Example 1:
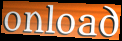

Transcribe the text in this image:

onload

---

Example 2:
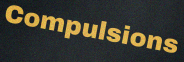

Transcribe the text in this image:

Compulsions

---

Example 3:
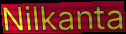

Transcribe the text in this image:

Nilkanta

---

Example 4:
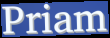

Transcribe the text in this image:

Priam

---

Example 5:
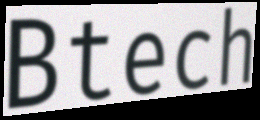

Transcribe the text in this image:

Btech